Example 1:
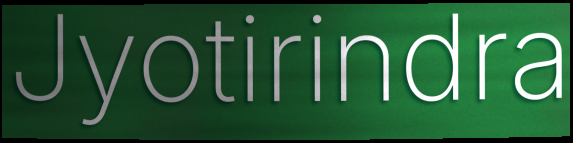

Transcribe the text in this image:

Jyotirindra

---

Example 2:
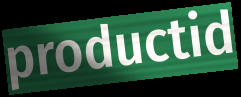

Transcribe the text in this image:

productid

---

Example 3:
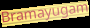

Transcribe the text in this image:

Bramayugam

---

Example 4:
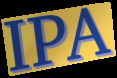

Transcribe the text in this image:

IPA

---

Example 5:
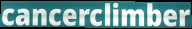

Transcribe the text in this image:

cancerclimber